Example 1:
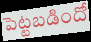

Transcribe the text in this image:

పెట్టబడిందో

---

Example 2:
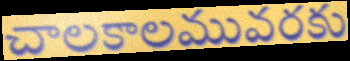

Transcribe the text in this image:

చాలకాలమువరకు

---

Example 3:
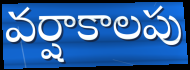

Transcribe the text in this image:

వర్షాకాలపు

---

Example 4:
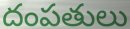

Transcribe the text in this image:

దంపతులు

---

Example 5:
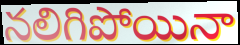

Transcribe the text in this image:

నలిగిపోయినా